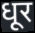
धूर